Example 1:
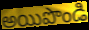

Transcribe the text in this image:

అయిపొండి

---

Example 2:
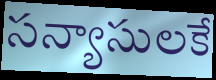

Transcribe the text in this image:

సన్యాసులకే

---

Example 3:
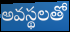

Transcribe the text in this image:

అవస్థలతో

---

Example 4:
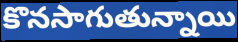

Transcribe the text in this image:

కొనసాగుతున్నాయి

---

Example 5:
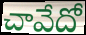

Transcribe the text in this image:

చావేదో